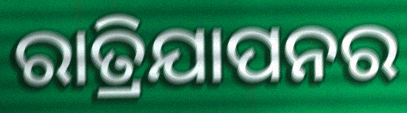
ରାତ୍ରିଯାପନର